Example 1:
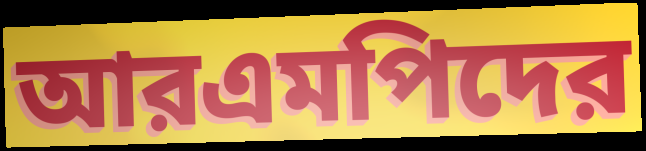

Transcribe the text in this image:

আরএমপিদের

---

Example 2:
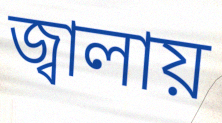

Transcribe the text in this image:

জ্বালায়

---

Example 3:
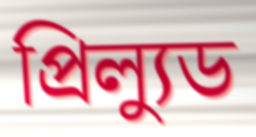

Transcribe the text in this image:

প্রিল্যুড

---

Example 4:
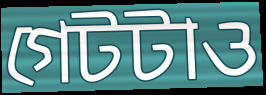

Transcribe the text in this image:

গেটটাও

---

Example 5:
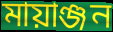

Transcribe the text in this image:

মায়াঞ্জন